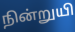
நின்றுயி